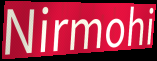
Nirmohi